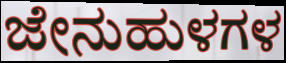
ಜೇನುಹುಳಗಳ